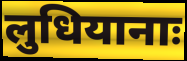
लुधियानाः